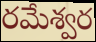
రమేశ్వర